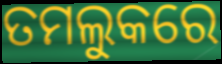
ତମଲୁକରେ